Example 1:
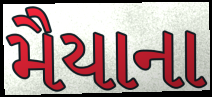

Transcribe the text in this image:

મૈયાના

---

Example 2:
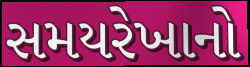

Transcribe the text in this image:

સમયરેખાનો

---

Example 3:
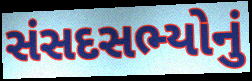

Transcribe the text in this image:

સંસદસભ્યોનું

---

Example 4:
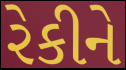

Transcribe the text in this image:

રેકીને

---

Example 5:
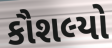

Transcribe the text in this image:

કૌશલ્યો